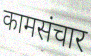
कामसंचार